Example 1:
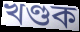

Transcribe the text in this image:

খণ্ডক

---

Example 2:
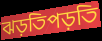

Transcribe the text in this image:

ঝড়তিপড়তি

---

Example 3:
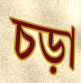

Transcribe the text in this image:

চড়া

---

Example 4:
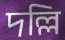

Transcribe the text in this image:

দল্লি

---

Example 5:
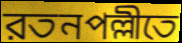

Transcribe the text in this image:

রতনপল্লীতে